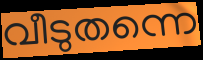
വീടുതന്നെ